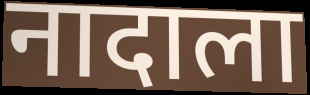
नादाला